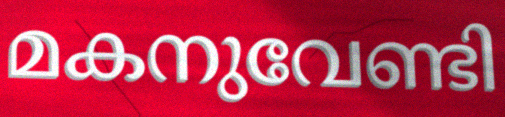
മകനുവേണ്ടി